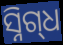
ସ୍ନିଗ୍‍ଧ